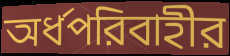
অর্ধপরিবাহীর